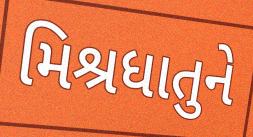
મિશ્રધાતુને